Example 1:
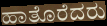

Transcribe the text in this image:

ಹಾತೊರೆದರು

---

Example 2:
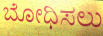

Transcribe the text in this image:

ಬೋಧಿಸಲು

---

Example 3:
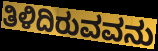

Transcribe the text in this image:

ತಿಳಿದಿರುವವನು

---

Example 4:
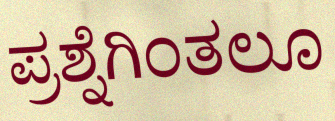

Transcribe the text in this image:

ಪ್ರಶ್ನೆಗಿಂತಲೂ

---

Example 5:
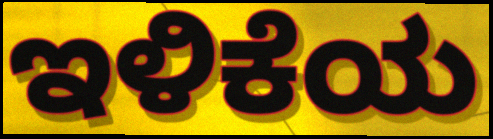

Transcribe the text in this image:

ಇಳಿಕೆಯ